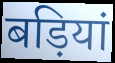
बड़ियां